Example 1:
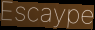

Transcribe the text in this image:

Escaype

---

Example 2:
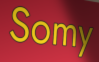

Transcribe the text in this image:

Somy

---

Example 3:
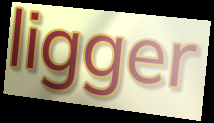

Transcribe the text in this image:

ligger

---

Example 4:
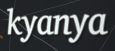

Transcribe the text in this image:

kyanya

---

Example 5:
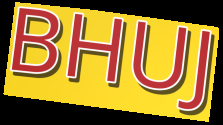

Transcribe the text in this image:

BHUJ